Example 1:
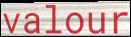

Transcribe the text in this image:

valour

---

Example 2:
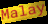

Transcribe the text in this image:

Malay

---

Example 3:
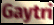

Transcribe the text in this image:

Gaytri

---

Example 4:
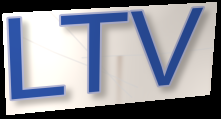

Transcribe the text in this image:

LTV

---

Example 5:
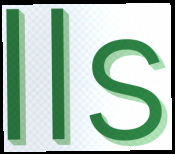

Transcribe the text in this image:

Ils